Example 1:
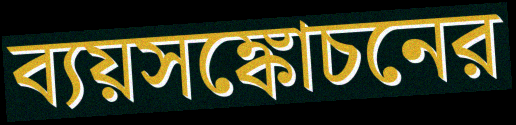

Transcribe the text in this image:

ব্যয়সঙ্কোচনের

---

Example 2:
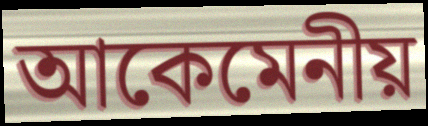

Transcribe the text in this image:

আকেমেনীয়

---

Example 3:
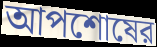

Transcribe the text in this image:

আপশোষের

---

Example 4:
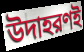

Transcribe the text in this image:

উদাহরণই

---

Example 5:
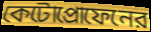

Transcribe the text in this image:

কেটোপ্রোফেনের